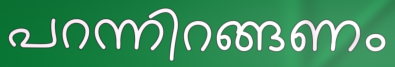
പറന്നിറങ്ങണം